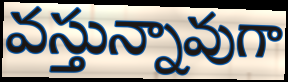
వస్తున్నావుగా